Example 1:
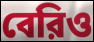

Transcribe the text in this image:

বেরিও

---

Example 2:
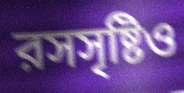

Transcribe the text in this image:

রসসৃষ্টিও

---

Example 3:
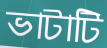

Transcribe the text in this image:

ভাটাটি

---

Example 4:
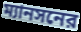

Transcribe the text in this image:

ম্যানসনের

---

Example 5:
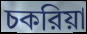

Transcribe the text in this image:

চকরিয়া